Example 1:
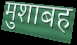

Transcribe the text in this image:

मुशाबह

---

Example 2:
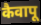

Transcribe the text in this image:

कैवापू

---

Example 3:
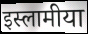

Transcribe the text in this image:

इस्लामीया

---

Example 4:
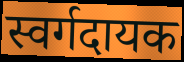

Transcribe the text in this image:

स्वर्गदायक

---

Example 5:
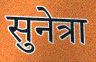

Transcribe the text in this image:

सुनेत्रा